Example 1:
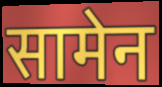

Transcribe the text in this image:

सामेन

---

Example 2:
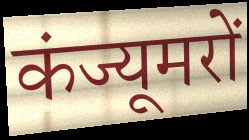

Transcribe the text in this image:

कंज्यूमरों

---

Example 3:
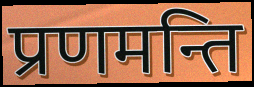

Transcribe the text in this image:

प्रणमन्ति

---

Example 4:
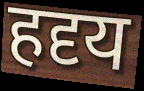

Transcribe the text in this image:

हदृय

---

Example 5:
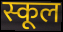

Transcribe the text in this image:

स्‍कूल